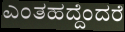
ಎಂತಹದ್ದೆಂದರೆ